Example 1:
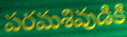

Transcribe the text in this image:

పరమశివుడికి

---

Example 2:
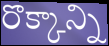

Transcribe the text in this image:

రొక్కాన్ని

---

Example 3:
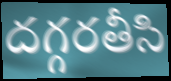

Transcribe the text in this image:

దగ్గరతీసి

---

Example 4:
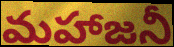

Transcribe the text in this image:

మహాజనీ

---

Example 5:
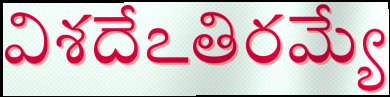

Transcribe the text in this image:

విశదేఽతిరమ్యే